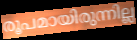
രൂപമായിരുന്നില്ല